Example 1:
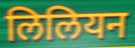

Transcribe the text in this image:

लिलियन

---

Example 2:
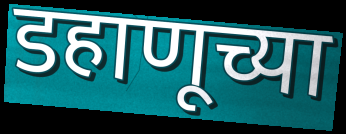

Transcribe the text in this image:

डहाणूच्या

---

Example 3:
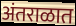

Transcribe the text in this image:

अंतराळात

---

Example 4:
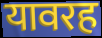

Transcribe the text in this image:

यावरह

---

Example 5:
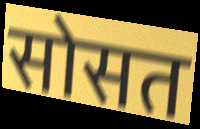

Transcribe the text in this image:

सोसत